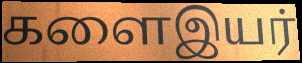
களைஇயர்